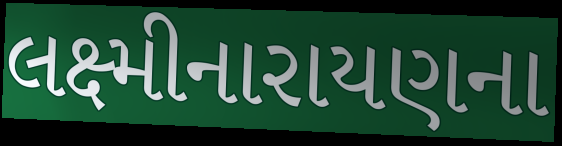
લક્ષ્મીનારાયણના